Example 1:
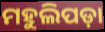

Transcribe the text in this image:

ମହୁଲିପଡ଼ା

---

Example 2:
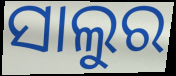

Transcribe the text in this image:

ସାଲୁର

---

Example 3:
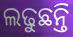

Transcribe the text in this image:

ଲଢୁଛନ୍ତି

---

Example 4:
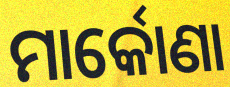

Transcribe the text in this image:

ମାର୍କୋଣା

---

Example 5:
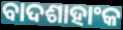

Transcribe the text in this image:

ବାଦଶାହାଂକ